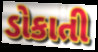
ડોકાતી